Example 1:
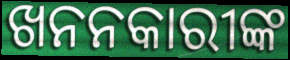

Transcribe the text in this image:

ଖନନକାରୀଙ୍କ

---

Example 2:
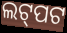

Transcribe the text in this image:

ଲଟ୍‌ପଟ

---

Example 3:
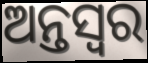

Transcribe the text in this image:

ଅନ୍ତସ୍ୱର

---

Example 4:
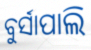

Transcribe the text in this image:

ବୁର୍ସାପାଲି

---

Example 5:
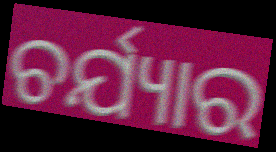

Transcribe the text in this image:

ଚର୍ଯ୍ୟାର